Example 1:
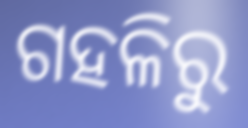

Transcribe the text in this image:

ଗହଳିରୁ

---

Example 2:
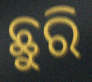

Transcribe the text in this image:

ଛୁରି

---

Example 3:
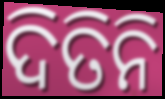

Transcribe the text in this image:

ଦିତିନି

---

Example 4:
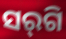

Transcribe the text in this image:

ସର୍‌ଗି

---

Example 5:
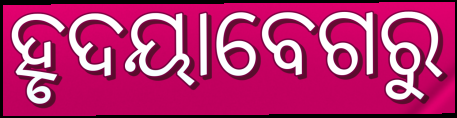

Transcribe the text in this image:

ହୃଦୟାବେଗରୁ